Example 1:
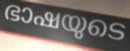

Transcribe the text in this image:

ഭാഷയുടെ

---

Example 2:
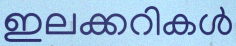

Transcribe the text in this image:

ഇലക്കറികൾ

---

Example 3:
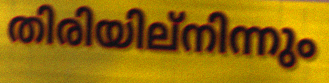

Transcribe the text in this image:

തിരിയില്നിന്നും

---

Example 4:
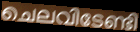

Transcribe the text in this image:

ചെലവിടേണ്ടി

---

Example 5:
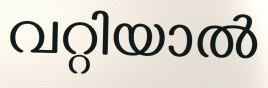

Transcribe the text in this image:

വറ്റിയാൽ